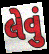
લેવું